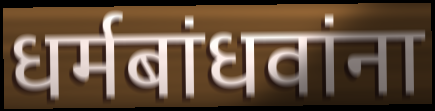
धर्मबांधवांना